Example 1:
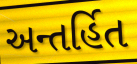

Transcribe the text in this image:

અન્તર્હિત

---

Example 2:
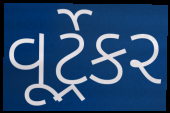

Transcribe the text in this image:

વૂર્ટ્રેકર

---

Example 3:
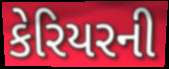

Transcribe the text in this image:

કેરિયરની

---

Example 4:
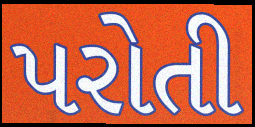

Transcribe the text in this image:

પરોતી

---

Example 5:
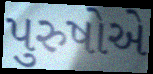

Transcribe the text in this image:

પુરુષોએ